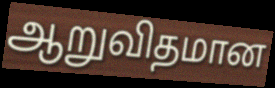
ஆறுவிதமான